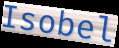
Isobel